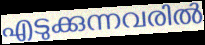
എടുക്കുന്നവരിൽ